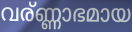
വര്ണ്ണാഭമായ